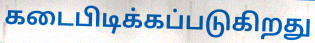
கடைபிடிக்கப்படுகிறது